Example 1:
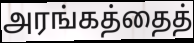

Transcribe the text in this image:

அரங்கத்தைத்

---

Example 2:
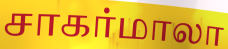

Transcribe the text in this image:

சாகர்மாலா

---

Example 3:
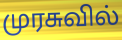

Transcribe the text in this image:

முரசுவில்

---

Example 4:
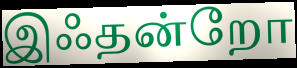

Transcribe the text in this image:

இஃதன்றோ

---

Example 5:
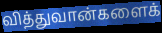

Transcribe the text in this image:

வித்துவான்களைக்